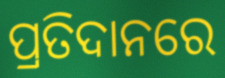
ପ୍ରତିଦାନରେ